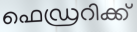
ഫെഡ്രറിക്ക്